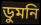
ডুমনি